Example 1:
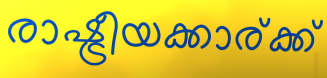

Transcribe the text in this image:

രാഷ്ട്രീയക്കാര്ക്ക്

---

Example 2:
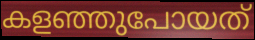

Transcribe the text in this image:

കളഞ്ഞുപോയത്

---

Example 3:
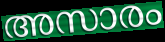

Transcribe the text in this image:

അസാരം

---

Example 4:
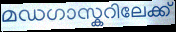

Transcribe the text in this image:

മഡഗാസ്കറിലേക്ക്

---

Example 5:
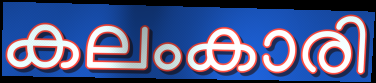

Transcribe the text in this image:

കലംകാരി